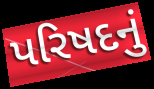
પરિષદનું